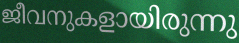
ജീവനുകളായിരുന്നു